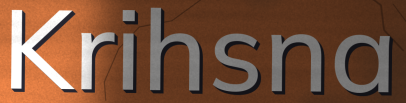
Krihsna